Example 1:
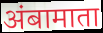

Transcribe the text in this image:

अंबामाता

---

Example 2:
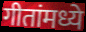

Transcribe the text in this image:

गीतांमध्ये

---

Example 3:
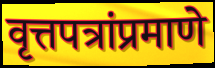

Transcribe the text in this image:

वृत्तपत्रांप्रमाणे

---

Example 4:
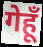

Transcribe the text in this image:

गेहूँ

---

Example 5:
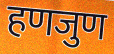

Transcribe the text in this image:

हणजुण